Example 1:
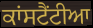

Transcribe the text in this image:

ਕਾਂਸਟੈਂਟੀਆ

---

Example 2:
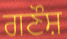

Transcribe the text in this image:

ਗਣੌਸ਼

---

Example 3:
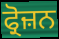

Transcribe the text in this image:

ਫ੍ਰੋਜ਼ਨ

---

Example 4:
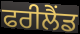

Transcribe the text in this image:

ਫਰੀਲੈਂਡ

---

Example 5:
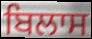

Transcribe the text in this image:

ਬਿਲਾਸ